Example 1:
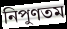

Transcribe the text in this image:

নিপুণতম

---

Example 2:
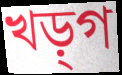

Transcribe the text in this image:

খড়্‌গ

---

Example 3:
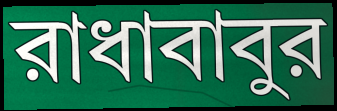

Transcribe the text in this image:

রাধাবাবুর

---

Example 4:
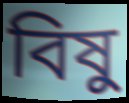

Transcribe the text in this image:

বিষু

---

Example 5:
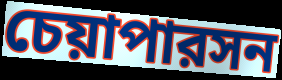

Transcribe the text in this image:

চেয়াপারসন